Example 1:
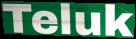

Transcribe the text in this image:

Teluk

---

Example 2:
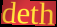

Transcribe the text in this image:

deth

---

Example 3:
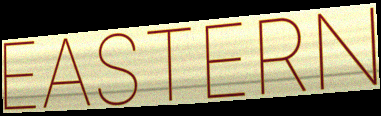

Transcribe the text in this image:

EASTERN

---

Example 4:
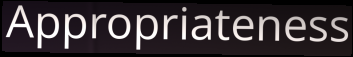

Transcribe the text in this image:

Appropriateness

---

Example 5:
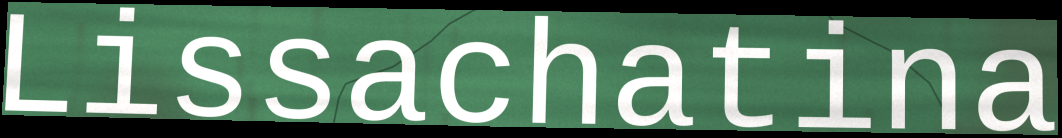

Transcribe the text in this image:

Lissachatina